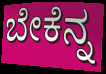
ಬೇಕೆನ್ನ